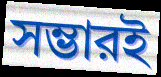
সম্ভারই